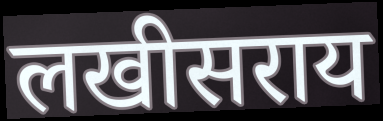
लखीसराय